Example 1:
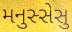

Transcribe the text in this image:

મનુસ્સેસુ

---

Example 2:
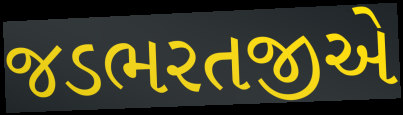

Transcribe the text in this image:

જડભરતજીએ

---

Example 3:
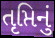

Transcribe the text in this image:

તૃપ્તિનું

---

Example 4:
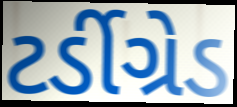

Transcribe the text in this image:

ટર્ડીગ્રેડ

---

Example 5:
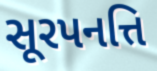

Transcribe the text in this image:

સૂરપનત્તિ